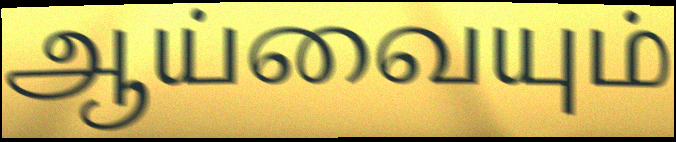
ஆய்வையும்